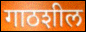
गाठशील